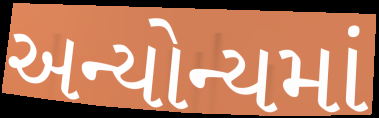
અન્યોન્યમાં